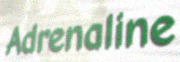
Adrenaline